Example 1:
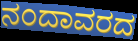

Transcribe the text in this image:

ನಂದಾವರದ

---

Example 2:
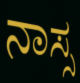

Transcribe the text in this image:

ನಾಸ್ಸ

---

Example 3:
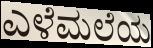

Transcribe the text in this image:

ಎಳೆಮಲೆಯ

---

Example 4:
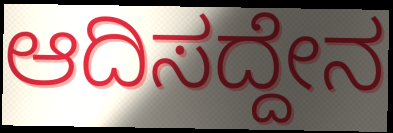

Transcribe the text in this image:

ಆದಿಸದ್ದೇನ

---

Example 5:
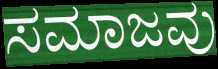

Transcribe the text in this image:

ಸಮಾಜವು